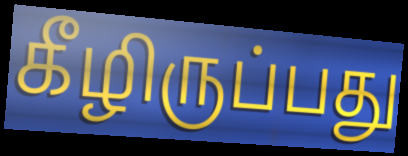
கீழிருப்பது